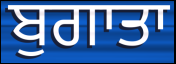
ਬੁਗਾਤਾ